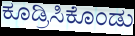
ಕೂಡ್ರಿಸಿಕೊಂಡು